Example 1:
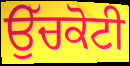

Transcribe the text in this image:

ਉੱਚਕੋਟੀ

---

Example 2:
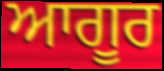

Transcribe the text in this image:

ਆਗੂਰ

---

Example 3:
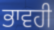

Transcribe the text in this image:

ਭਾਵਹੀ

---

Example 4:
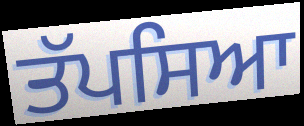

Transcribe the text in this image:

ਤੱਪਸਿਆ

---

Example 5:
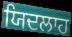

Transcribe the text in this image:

ਯਿਦਲਾਹ